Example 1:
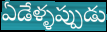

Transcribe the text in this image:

ఏడేళ్ళప్పుడు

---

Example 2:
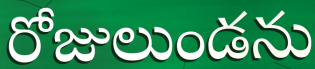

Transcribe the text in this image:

రోజులుండను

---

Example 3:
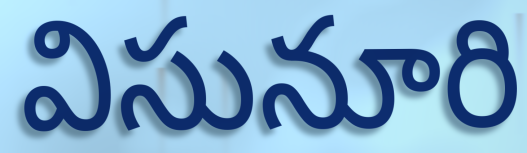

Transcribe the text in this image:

విసునూరి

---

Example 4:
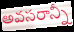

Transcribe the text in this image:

అవసరాన్నీ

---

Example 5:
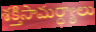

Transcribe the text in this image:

శక్తిసామర్ధ్యాలు